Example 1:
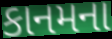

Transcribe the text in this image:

કાનમના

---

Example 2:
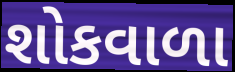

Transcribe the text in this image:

શોકવાળા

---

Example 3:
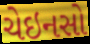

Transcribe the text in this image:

ચેઇનસો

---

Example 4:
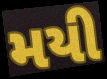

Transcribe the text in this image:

મયી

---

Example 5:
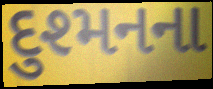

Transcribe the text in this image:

દુશ્મનના